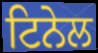
ਟਿਨੇਲ